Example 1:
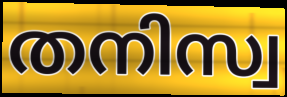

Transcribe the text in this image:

തനിസ്വ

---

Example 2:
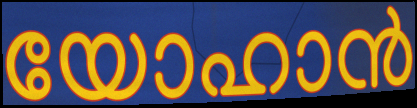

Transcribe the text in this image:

യോഹാൻ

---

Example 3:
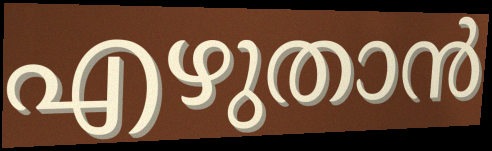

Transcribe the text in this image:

എഴുതാൻ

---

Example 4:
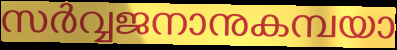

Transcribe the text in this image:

സർവ്വജനാനുകമ്പയാ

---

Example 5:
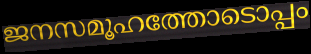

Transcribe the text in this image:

ജനസമൂഹത്തോടൊപ്പം